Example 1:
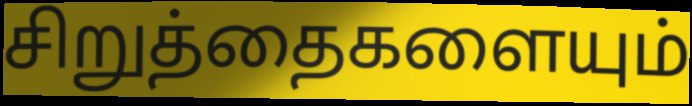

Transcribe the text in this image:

சிறுத்தைகளையும்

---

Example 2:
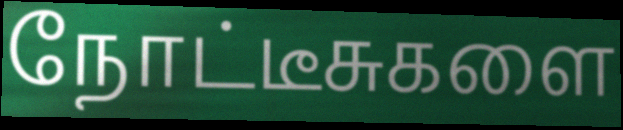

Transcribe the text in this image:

நோட்டீசுகளை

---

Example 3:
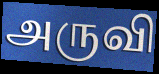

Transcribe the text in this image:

அருவி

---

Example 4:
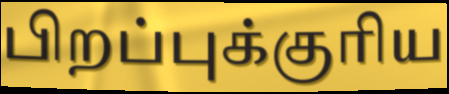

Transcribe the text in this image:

பிறப்புக்குரிய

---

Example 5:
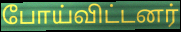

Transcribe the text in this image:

போய்விட்டனர்